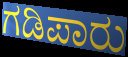
ಗಡಿಪಾರು